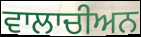
ਵਾਲਾਚੀਅਨ